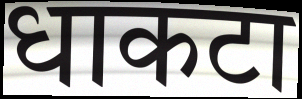
धाकटा